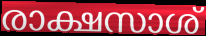
രാക്ഷസാശ്